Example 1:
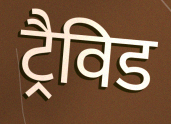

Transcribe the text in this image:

ट्रैविड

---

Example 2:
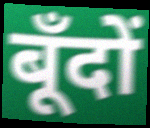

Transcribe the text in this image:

बूँदों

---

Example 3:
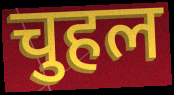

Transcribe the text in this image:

चुहल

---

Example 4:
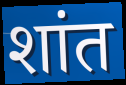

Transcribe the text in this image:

शांत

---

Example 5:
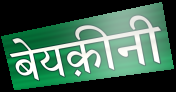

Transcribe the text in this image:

बेयक़ीनी